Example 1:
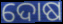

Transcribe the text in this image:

ଦୋଷ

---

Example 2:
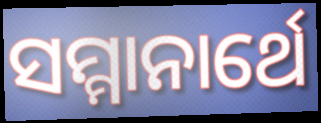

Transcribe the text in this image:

ସମ୍ମାନାର୍ଥେ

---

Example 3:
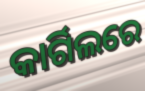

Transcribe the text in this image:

କାର୍ଗିଲରେ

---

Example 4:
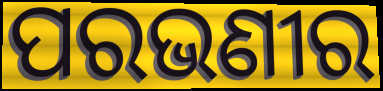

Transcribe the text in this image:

ପରଭଣୀର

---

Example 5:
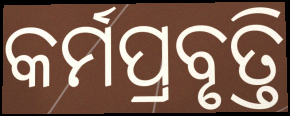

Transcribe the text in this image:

କର୍ମପ୍ରବୃତ୍ତି